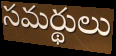
సమర్థులు